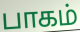
பாகம்